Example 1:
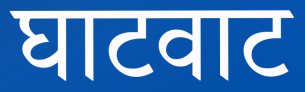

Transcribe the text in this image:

घाटवाट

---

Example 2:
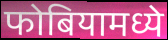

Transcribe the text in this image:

फोबियामध्ये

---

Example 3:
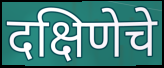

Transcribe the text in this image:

दक्षिणेचे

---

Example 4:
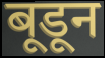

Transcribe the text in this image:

बूडून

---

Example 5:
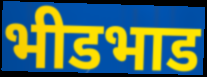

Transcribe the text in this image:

भीडभाड